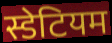
स्डेटियम